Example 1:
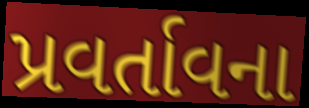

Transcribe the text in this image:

પ્રવર્તાવના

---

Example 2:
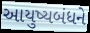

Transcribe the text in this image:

આયુષ્યબંધને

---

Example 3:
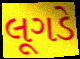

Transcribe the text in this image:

લૂગડે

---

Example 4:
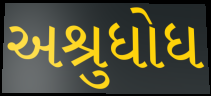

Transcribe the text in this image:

અશ્રુધોધ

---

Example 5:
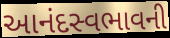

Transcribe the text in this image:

આનંદસ્વભાવની